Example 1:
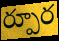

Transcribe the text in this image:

ర్పూర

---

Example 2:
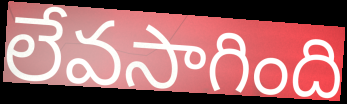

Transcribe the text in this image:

లేవసాగింది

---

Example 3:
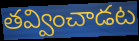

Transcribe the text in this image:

తవ్వించాడట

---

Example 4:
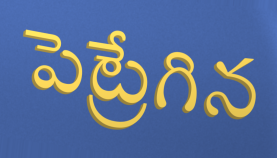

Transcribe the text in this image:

పెట్రేగిన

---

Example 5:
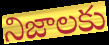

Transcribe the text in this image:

నిజాలకు